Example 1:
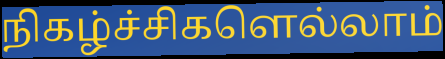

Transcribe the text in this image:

நிகழ்ச்சிகளெல்லாம்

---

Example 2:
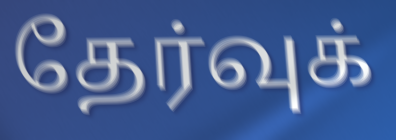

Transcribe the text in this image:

தேர்வுக்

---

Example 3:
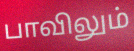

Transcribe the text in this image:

பாவிலும்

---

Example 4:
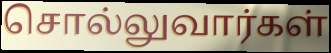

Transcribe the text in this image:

சொல்லுவார்கள்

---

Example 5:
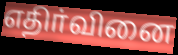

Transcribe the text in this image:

எதிர்வினை